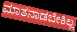
ಮಾತನಾಡಬೇಕಿಲ್ಲ